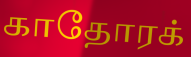
காதோரக்